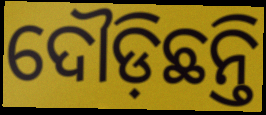
ଦୌଡ଼ିଛନ୍ତି